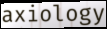
axiology